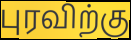
புரவிற்கு